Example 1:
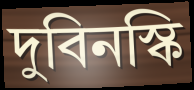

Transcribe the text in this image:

দুবিনস্কি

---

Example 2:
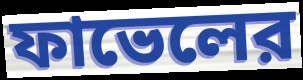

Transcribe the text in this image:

ফাভেলের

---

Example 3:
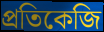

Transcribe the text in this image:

প্রতিকেজি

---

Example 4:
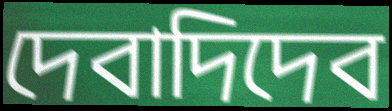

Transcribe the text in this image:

দেবাদিদেব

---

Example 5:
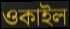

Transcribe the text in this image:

ওকাইল